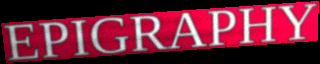
EPIGRAPHY